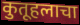
कुतूहलाचा